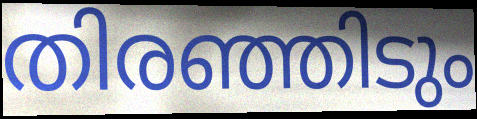
തിരഞ്ഞിടും